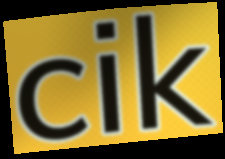
cik